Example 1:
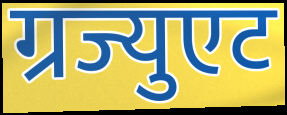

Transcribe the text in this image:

ग्रज्युएट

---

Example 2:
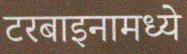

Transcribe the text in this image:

टरबाइनामध्ये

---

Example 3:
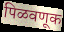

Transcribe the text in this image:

पिळवणूक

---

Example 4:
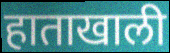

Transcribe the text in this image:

हाताखाली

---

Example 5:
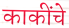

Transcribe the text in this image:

काकींचे